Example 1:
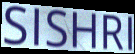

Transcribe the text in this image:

SISHRI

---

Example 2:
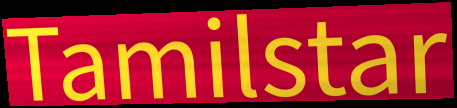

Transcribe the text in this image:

Tamilstar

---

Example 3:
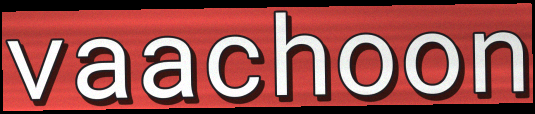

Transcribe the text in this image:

vaachoon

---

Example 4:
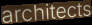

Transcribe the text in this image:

architects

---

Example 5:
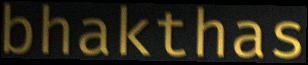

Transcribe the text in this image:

bhakthas